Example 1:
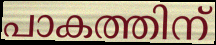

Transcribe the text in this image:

പാകത്തിന്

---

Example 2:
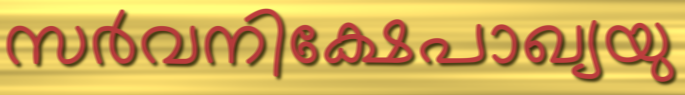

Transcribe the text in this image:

സർവനിക്ഷേപാഖ്യയു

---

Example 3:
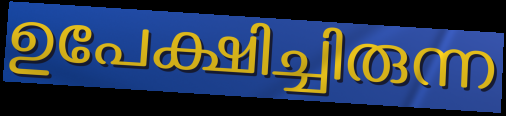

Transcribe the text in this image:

ഉപേക്ഷിച്ചിരുന്ന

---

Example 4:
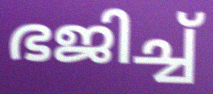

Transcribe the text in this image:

ഭജിച്ച്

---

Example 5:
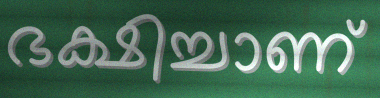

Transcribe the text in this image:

ഭക്ഷിച്ചാണ്